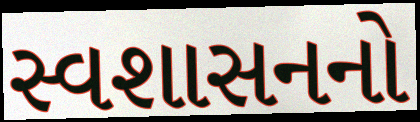
સ્વશાસનનો